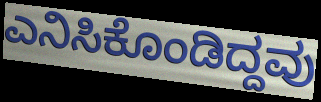
ಎನಿಸಿಕೊಂಡಿದ್ದವು